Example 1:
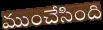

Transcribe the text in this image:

ముంచేసింది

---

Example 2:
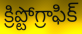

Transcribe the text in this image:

క్రిప్టోగ్రాఫిక్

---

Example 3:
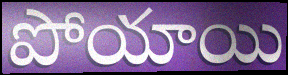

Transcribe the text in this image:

పోయాయి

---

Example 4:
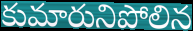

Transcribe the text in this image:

కుమారునిపోలిన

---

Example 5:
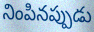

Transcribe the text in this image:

నింపినప్పుడు